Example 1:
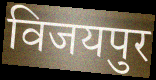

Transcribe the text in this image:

विजयपुर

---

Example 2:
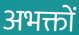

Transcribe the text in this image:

अभक्तों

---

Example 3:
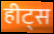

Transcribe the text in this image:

हीट्स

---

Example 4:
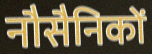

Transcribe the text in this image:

नौसैनिकों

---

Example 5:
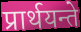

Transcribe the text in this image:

प्रार्थयन्ते